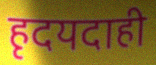
हृदयदाही